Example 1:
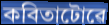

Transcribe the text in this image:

কবিতাটোৱে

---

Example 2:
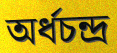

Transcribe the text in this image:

অৰ্ধচন্দ্ৰ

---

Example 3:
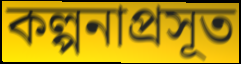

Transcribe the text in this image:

কল্পনাপ্ৰসূত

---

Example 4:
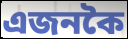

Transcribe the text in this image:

এজনকৈ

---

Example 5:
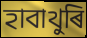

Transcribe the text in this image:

হাবাথুৰি